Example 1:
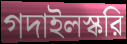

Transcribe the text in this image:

গদাইলস্করি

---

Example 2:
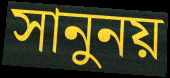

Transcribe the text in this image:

সানুনয়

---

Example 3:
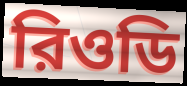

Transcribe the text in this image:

রিওডি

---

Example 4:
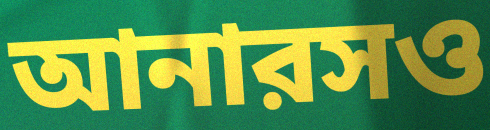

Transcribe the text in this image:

আনারসও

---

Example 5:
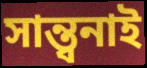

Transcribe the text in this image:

সান্ত্বনাই